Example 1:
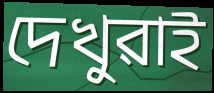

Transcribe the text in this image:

দেখুৱাই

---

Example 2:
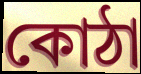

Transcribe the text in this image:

কোঠা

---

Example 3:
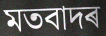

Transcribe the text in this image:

মতবাদৰ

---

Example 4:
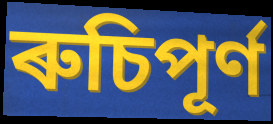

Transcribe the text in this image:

ৰুচিপূৰ্ণ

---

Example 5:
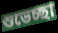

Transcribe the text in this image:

শুভেচ্ছা